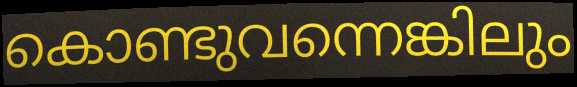
കൊണ്ടുവന്നെങ്കിലും